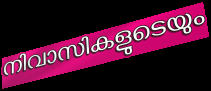
നിവാസികളുടെയും